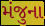
મંજુના